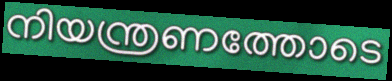
നിയന്ത്രണത്തോടെ